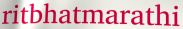
ritbhatmarathi